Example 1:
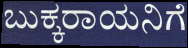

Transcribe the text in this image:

ಬುಕ್ಕರಾಯನಿಗೆ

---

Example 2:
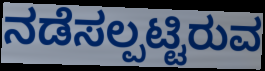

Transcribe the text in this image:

ನಡೆಸಲ್ಪಟ್ಟಿರುವ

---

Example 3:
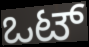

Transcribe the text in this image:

ಒಟ್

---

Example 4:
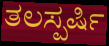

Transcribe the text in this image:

ತಲಸ್ಪರ್ಷಿ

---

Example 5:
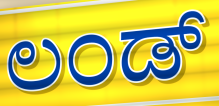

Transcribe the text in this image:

ಲಂಡ್